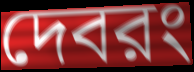
দেবরং